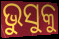
ଭୁସୁକୁ